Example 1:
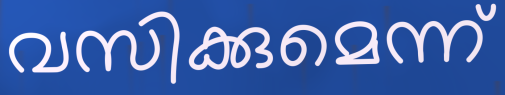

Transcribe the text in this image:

വസിക്കുമെന്ന്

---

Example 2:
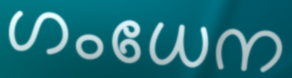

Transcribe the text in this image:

ഗംധേന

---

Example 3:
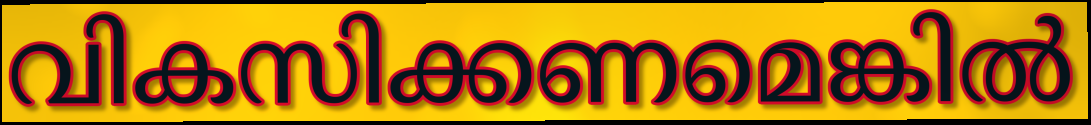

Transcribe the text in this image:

വികസിക്കണമെങ്കിൽ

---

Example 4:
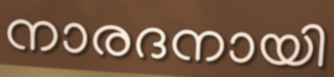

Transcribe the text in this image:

നാരദനായി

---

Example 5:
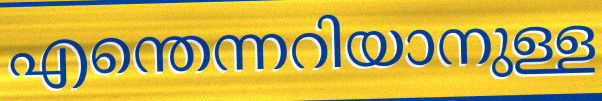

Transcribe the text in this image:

എന്തെന്നറിയാനുള്ള